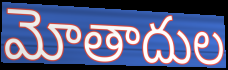
మోతాదుల